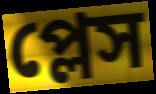
প্লেস